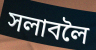
সলাবলৈ